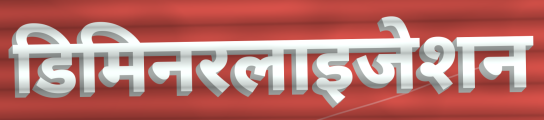
डिमिनरलाइजेशन